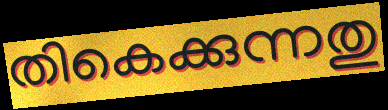
തികെക്കുന്നതു